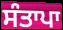
ਸੰਤਾਪਾ